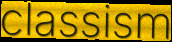
classism